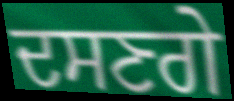
ਦਸਣਗੇ